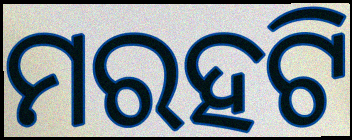
ମରହଟି